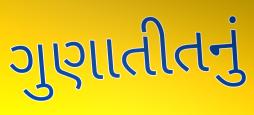
ગુણાતીતનું